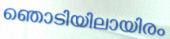
ഞൊടിയിലായിരം